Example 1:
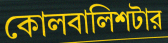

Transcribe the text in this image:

কোলবালিশটার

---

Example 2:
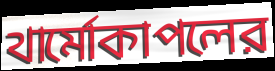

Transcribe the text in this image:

থার্মোকাপলের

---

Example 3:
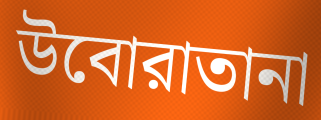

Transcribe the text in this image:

উবোরাতানা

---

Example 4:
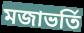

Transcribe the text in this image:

মজাভর্তি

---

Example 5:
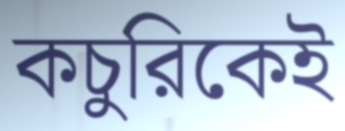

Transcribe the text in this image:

কচুরিকেই